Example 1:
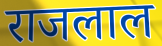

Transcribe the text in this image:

राजलाल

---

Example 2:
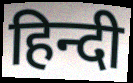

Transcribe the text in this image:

हिन्‍दी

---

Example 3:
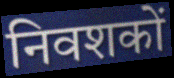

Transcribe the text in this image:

निवशकों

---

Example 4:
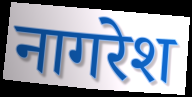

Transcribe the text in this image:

नागरेश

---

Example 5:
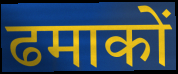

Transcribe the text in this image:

ढमाकों